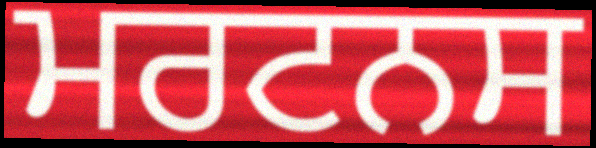
ਮਰਟਨਸ